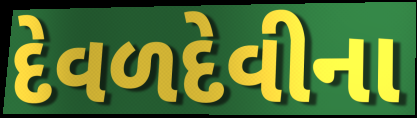
દેવળદેવીના